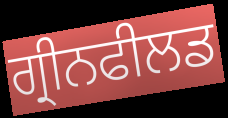
ਗ੍ਰੀਨਫੀਲਡ